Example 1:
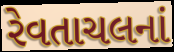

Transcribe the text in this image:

રેવતાચલનાં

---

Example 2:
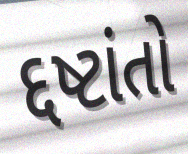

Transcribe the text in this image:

દ્દષ્ટાંતો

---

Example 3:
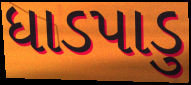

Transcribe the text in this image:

ધાડપાડુ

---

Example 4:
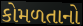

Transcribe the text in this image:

કોમળતાનો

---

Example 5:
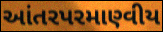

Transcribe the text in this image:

આંતરપરમાણ્વીય